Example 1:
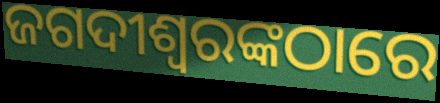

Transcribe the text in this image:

ଜଗଦୀଶ୍ୱରଙ୍କଠାରେ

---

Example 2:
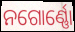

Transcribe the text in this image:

ନଗୋର୍ଣ୍ଣୋ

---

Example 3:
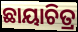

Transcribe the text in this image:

ଛାୟାଚିତ୍ର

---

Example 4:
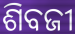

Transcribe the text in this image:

ଶିବଜୀ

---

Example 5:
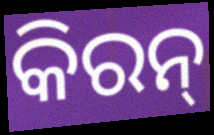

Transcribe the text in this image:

କିରନ୍